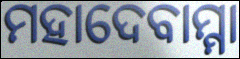
ମହାଦେବାମ୍ମା